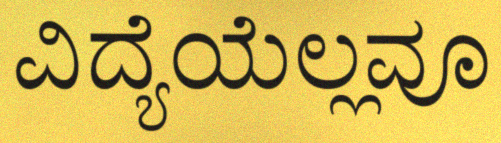
ವಿದ್ಯೆಯೆಲ್ಲವೂ